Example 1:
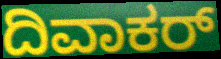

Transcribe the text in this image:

ದಿವಾಕರ್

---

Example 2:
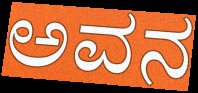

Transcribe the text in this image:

ಅವನ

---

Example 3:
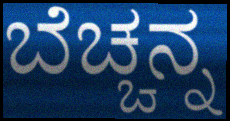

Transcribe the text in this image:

ಬೆಚ್ಚನ್ನ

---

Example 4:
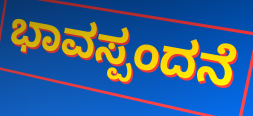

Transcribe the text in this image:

ಭಾವಸ್ಪಂದನೆ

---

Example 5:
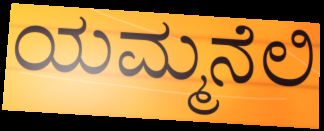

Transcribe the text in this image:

ಯಮ್ಮನೆಲಿ